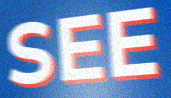
SEE